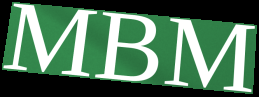
MBM